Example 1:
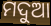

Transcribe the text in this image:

ମଦୁଆ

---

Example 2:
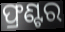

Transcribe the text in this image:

ଫ୍ରଣ୍ଟର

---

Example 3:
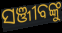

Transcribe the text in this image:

ସଞ୍ଜୀବଙ୍କୁ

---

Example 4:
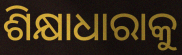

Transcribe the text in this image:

ଶିକ୍ଷାଧାରାକୁ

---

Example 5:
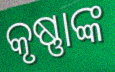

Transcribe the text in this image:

କୃଷ୍ଣାଙ୍କ